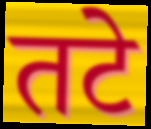
तटे